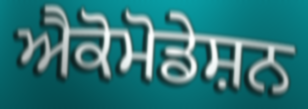
ਐਕੋਮੋਡੇਸ਼ਨ